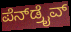
ಪೆನ್‌ಡ್ರೈವ್